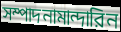
সম্পাদনামান্দারিন